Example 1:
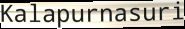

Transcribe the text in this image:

Kalapurnasuri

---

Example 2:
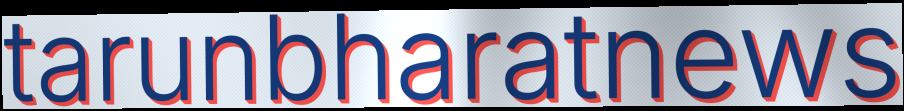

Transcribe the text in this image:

tarunbharatnews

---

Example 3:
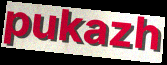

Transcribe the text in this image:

pukazh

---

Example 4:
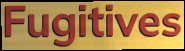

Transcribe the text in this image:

Fugitives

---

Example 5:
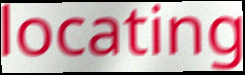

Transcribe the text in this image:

locating